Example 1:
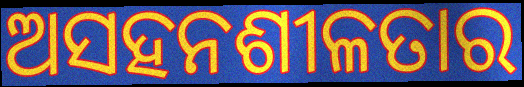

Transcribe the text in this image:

ଅସହନଶୀଳତାର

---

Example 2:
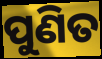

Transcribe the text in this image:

ପୁଣିତ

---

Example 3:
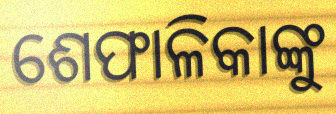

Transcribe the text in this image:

ଶେଫାଳିକାଙ୍କୁ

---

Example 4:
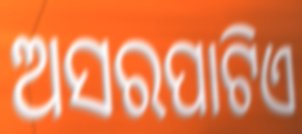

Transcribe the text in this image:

ଅସରପାଟିଏ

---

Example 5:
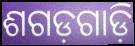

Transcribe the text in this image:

ଶଗଡ଼ଗାଡ଼ି